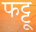
फट्टू